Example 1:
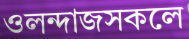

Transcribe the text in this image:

ওলন্দাজসকলে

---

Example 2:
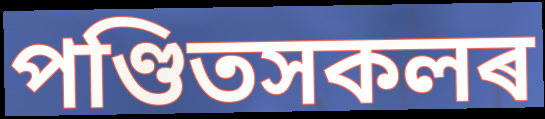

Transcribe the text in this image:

পণ্ডিতসকলৰ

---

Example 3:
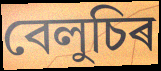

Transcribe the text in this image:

বেলুচিৰ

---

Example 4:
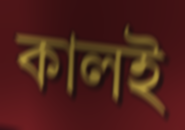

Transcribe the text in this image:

কালই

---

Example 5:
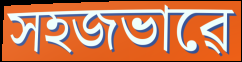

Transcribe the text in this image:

সহজভাৱে